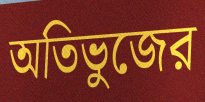
অতিভুজের